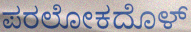
ಪರಲೋಕದೊಳ್